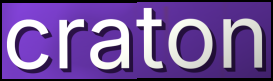
craton